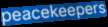
peacekeepers